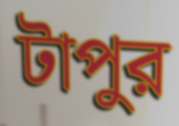
টাপুর